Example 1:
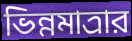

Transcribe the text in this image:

ভিন্নমাত্রার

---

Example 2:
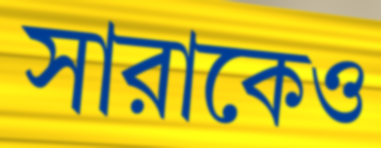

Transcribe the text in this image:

সারাকেও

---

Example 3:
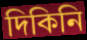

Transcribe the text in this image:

দিকিনি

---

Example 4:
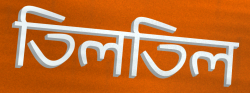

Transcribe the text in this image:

তিলতিল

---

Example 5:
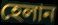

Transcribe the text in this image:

হেলান